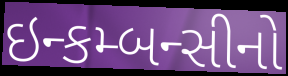
ઇન્કમ્બન્સીનો